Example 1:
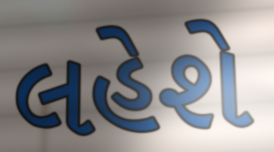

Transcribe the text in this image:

લહેશે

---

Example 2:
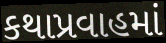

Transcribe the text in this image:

કથાપ્રવાહમાં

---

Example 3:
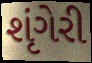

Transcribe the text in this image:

શૃંગેરી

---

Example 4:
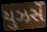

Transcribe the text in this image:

યુઝર્સે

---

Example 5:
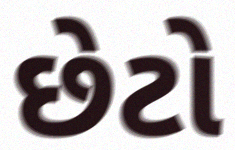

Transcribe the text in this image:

છેટો